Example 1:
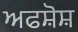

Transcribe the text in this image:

ਅਫਸ਼ੋਸ਼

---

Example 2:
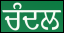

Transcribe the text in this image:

ਚੰਦਲ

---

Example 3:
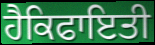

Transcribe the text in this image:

ਹੈਕਿਫਾਇਤੀ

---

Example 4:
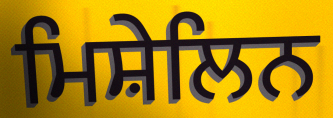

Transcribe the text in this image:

ਮਿਸ਼ੇਲਿਨ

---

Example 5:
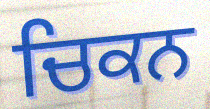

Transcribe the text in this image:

ਚਿਕਨ